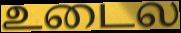
உடைல